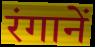
रंगानें